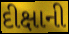
દીક્ષાની